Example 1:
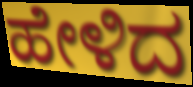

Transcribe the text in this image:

ಹೇಳಿದ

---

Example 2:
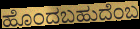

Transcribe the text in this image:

ಹೊಂದಬಹುದೆಂಬ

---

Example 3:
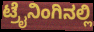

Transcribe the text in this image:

ಟ್ರೈನಿಂಗಿನಲ್ಲಿ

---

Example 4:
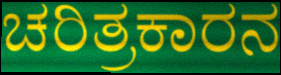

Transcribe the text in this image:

ಚರಿತ್ರಕಾರನ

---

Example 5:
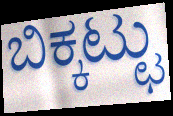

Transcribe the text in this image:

ಬಿಕ್ಕಟ್ಟು